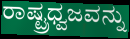
ರಾಷ್ಟ್ರಧ್ವಜವನ್ನು